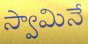
స్వామినే